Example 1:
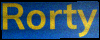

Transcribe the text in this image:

Rorty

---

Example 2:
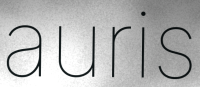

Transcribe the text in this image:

auris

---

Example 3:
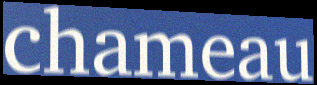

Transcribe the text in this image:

chameau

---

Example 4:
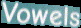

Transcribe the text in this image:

Vowels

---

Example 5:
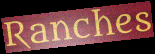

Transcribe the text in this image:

Ranches